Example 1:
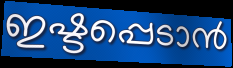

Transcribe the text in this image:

ഇഷ്ടപ്പെടാൻ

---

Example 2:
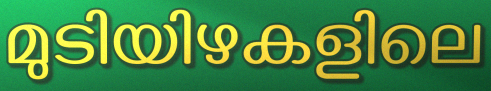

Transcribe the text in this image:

മുടിയിഴകളിലെ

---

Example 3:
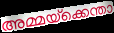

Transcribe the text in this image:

അമ്മയ്‌ക്കെന്താ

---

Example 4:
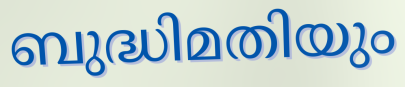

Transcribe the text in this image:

ബുദ്ധിമതിയും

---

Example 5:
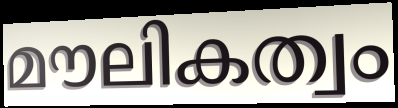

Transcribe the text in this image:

മൗലികത്വം